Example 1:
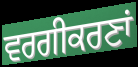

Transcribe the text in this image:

ਵਰਗੀਕਰਣਾਂ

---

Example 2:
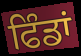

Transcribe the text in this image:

ਫਿੰਡਾਂ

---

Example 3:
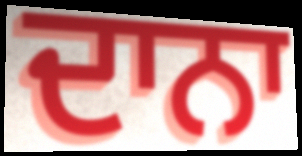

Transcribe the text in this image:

ਦਾਨਾ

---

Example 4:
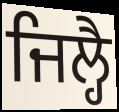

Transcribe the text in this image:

ਜਿਲ੍ਹੈ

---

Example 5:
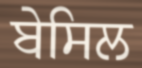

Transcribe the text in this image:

ਬੇਸਿਲ